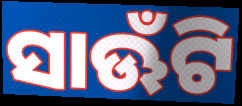
ସାଊଁଟି